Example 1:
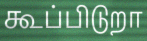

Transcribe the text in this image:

கூப்பிடுறா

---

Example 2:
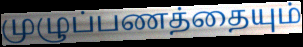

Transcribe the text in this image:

முழுப்பணத்தையும்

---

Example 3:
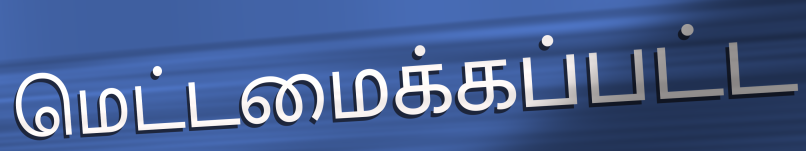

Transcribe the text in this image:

மெட்டமைக்கப்பட்ட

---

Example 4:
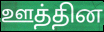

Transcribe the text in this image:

ஊத்தின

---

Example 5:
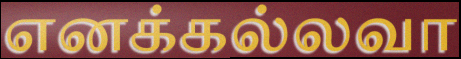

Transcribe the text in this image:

எனக்கல்லவா